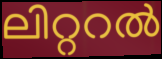
ലിറ്ററൽ